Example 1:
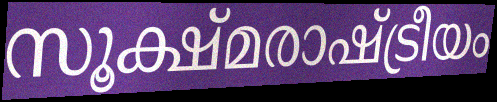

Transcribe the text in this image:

സൂക്ഷ്മരാഷ്ട്രീയം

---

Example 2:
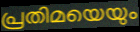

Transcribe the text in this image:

പ്രതിമയെയും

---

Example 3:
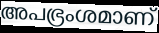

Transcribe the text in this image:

അപഭ്രംശമാണ്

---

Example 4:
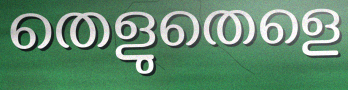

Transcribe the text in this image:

തെളുതെളെ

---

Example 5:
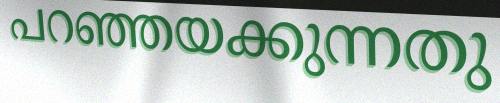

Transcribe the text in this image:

പറഞ്ഞയക്കുന്നതു